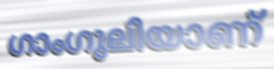
ഗാംഗുലിയാണ്